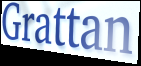
Grattan